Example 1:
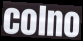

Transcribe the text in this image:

colno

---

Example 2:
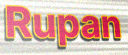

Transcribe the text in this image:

Rupan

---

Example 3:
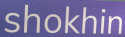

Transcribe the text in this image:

shokhin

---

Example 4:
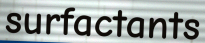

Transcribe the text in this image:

surfactants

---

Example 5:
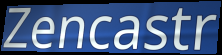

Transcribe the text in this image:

Zencastr